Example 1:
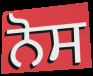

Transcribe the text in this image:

ਨੋਸ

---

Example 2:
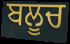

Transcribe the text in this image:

ਬਲੂਚ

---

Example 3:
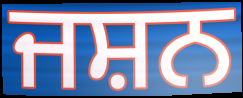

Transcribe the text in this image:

ਜਸ਼ਨ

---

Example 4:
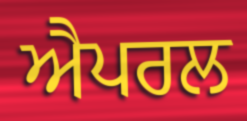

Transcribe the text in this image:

ਐਪਰਲ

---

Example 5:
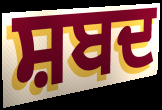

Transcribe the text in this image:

ਸ਼ਬਦ